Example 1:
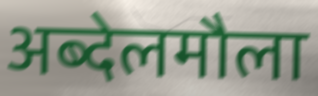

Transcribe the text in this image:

अब्देलमौला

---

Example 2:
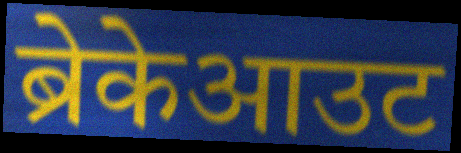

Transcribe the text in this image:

ब्रेकेआउट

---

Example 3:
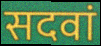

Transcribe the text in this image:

सदवां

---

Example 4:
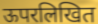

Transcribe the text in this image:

ऊपरलिखित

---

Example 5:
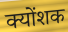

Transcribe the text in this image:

क्योंशक